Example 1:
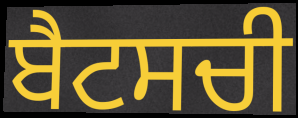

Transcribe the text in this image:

ਬੈਟਸਚੀ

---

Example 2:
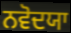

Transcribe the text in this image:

ਨਵੋਦਯਾ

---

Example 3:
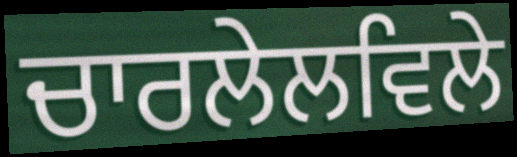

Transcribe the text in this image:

ਚਾਰਲੇਲਵਿਲੇ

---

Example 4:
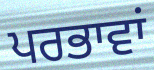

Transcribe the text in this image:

ਪਰਭਾਵਾਂ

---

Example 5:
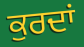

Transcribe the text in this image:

ਕੁਰਦਾਂ